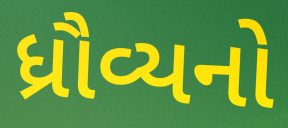
ધ્રૌવ્યનો